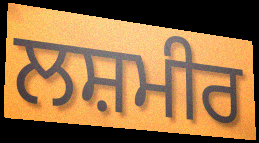
ਲਸ਼ਮੀਰ